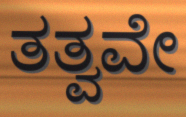
ತತ್ವವೇ